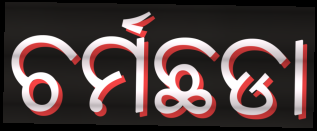
ଚର୍ମଛଡା